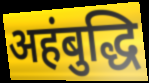
अहंबुद्धि